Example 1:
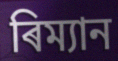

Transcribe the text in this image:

ৰিম্যান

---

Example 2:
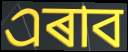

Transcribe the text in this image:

এৰাব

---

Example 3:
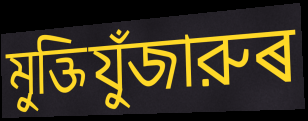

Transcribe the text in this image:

মুক্তিযুঁজাৰুৰ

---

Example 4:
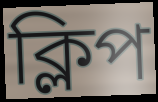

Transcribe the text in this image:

ক্লিপ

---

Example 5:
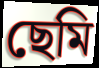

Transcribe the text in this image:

ছেমি